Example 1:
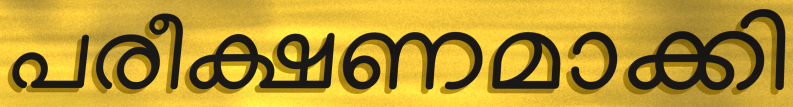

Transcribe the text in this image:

പരീക്ഷണമാക്കി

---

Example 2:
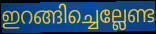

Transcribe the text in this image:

ഇറങ്ങിച്ചെല്ലേണ്ട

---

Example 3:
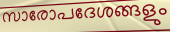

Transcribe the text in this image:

സാരോപദേശങ്ങളും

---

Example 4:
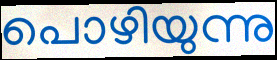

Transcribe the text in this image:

പൊഴിയുന്നു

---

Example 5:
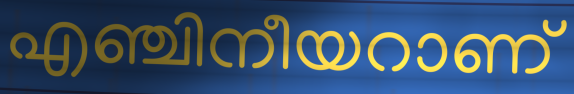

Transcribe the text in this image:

എഞ്ചിനീയറാണ്